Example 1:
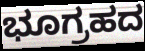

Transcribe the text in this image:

ಭೂಗ್ರಹದ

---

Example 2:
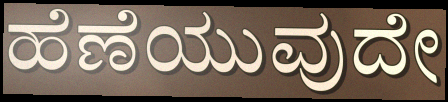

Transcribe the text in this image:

ಹೆಣೆಯುವುದೇ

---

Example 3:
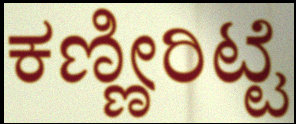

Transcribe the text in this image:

ಕಣ್ಣೀರಿಟ್ಟೆ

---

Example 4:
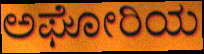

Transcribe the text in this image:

ಅಘೋರಿಯ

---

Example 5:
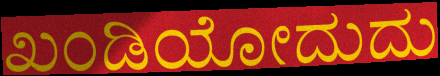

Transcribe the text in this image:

ಖಂಡಿಯೋದುದು